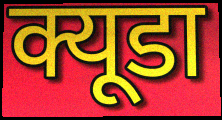
क्यूडा